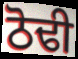
ਠੋਢੀ